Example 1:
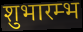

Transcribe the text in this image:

शुभारम्भ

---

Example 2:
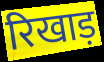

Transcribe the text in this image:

रिखाड़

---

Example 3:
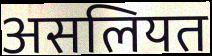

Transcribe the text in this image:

असलियत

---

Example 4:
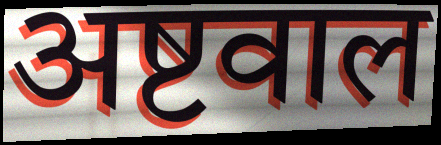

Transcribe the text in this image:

अष्टवाल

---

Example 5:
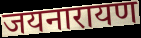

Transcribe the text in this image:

जयनारायण